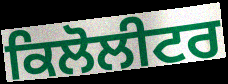
ਕਿਲੋਲੀਟਰ